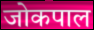
जोकपाल